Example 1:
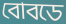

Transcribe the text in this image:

বোবডে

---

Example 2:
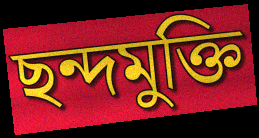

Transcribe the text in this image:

ছন্দমুক্তি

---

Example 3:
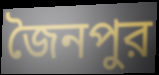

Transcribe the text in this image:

জৈনপুর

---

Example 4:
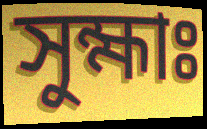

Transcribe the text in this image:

সুহ্মাঃ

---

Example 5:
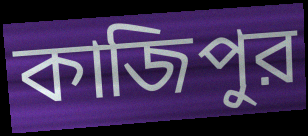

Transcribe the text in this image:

কাজিপুর